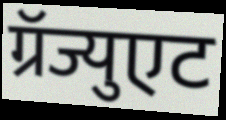
ग्रॅज्युएट